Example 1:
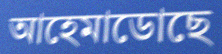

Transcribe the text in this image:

আহেমাডোছে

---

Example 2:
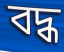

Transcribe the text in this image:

বদ্ধ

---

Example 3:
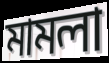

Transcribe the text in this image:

মামলা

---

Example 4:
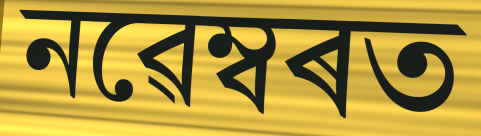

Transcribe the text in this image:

নৱেম্বৰত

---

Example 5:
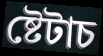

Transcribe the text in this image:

ষ্টেটাচ